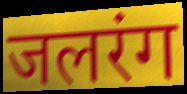
जलरंग